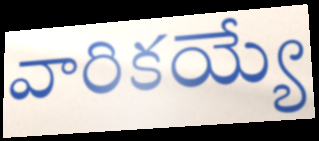
వారికయ్యే